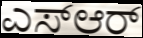
ಎಸ್ಆರ್